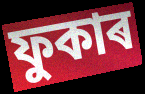
ফুকাৰ